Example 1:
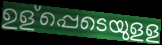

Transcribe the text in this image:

ഉള്പ്പെടെയുളള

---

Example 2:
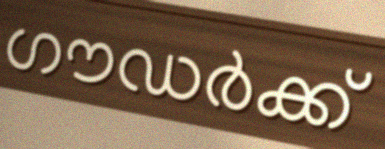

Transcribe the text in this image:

ഗൗഡർക്ക്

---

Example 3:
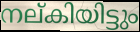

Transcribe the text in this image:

നല്കിയിട്ടും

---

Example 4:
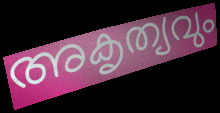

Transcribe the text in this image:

അകൃത്യവും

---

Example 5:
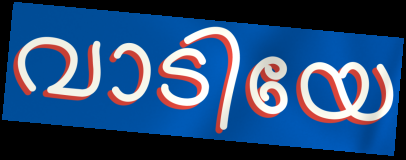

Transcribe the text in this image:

വാടിയേ